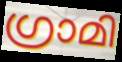
ഗ്രാമി